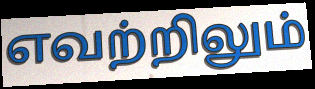
எவற்றிலும்